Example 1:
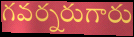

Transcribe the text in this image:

గవర్నరుగారు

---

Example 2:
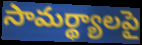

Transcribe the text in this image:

సామర్థ్యాలపై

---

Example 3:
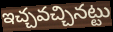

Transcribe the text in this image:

ఇచ్చవచ్చినట్టు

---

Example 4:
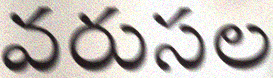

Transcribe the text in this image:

వరుసల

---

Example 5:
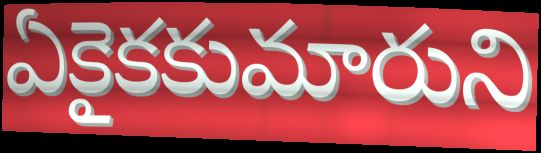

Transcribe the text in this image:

ఏకైకకుమారుని